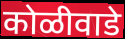
कोळीवाडे